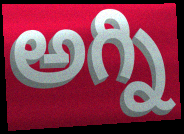
అగ్ని